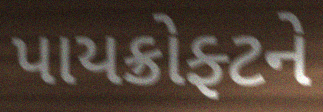
પાયક્રોફ્ટને